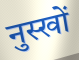
नुस्‍खों